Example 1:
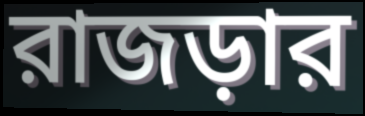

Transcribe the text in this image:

রাজড়ার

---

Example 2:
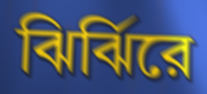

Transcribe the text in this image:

ঝির্ঝিরে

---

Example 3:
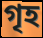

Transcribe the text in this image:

গৃহ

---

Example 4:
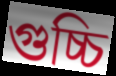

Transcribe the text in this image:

গুচ্চি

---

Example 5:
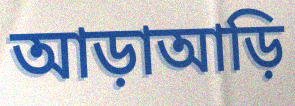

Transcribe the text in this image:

আড়াআড়ি